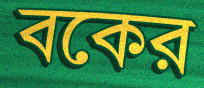
বকের